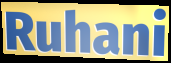
Ruhani